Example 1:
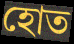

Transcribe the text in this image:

হোত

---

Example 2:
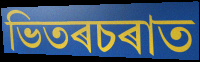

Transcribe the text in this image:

ভিতৰচৰাত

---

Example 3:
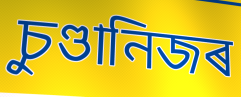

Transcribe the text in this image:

চুণ্ডানিজৰ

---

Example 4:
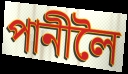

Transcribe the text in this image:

পানীলৈ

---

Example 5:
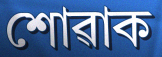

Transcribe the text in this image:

শোৱাক